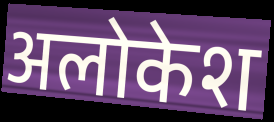
अलोकेश